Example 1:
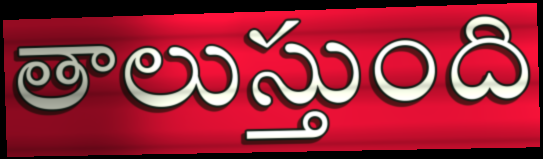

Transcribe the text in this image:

తాలుస్తుంది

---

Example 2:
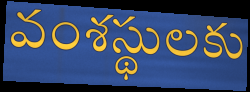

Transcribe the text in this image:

వంశస్థులకు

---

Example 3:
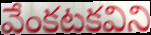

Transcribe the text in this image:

వేంకటకవిని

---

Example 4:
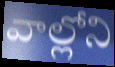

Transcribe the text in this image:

వాల్లోని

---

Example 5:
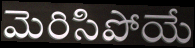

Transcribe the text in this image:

మెరిసిపోయే